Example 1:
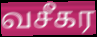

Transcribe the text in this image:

வசீகர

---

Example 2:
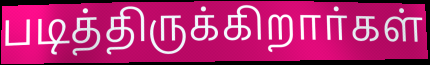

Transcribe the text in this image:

படித்திருக்கிறார்கள்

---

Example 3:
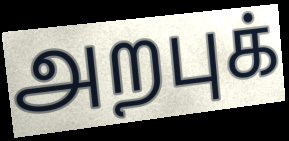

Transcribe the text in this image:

அறபுக்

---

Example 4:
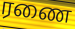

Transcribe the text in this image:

ரணை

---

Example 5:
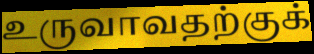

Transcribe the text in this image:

உருவாவதற்குக்